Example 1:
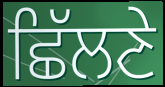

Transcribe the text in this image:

ਛਿੱਲਣੇ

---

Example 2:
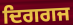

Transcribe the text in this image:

ਦਿਗਗਜ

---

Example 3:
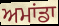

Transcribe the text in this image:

ਅਮਾਂਡਾ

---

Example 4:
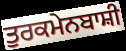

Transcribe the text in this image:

ਤੁਰਕਮੇਨਬਾਸ਼ੀ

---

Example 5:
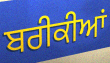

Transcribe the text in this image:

ਬਰੀਕੀਆਂ